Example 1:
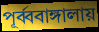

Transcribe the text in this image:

পূর্ব্ববাঙ্গালায়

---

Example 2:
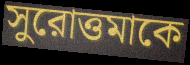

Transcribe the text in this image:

সুরোত্তমাকে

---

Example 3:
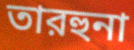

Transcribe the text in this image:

তারহুনা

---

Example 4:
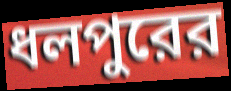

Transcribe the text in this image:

ধলপুরের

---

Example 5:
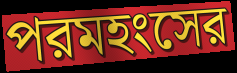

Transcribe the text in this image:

পরমহংসের